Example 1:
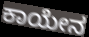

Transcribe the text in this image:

ಕಾಯೇನ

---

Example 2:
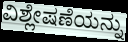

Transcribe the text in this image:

ವಿಶ್ಲೇಷಣೆಯನ್ನು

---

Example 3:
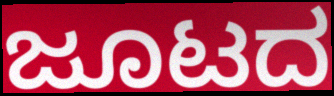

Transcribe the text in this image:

ಜೂಟದ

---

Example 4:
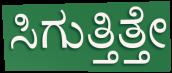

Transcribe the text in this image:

ಸಿಗುತ್ತಿತ್ತೇ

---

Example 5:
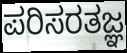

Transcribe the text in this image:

ಪರಿಸರತಜ್ಞ